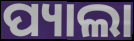
ପ୍ୟାଲା